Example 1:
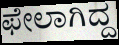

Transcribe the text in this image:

ಫೇಲಾಗಿದ್ದ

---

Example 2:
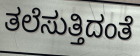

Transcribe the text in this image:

ತಲೆಸುತ್ತಿದಂತೆ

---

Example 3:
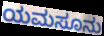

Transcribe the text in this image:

ಯಮಸೂನು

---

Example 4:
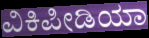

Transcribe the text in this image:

ವಿಕಿಪೀಡಿಯಾ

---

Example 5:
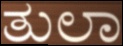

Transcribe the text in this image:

ತುಲಾ